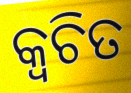
କ୍ବଚିତ